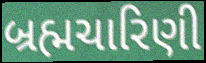
બ્રહ્મચારિણી